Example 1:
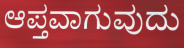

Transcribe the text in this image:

ಆಪ್ತವಾಗುವುದು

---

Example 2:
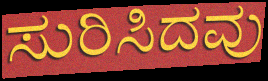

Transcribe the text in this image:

ಸುರಿಸಿದವು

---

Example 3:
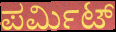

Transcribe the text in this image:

ಪರ್ಮಿಟ್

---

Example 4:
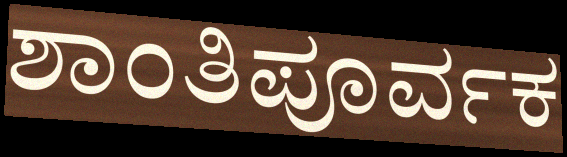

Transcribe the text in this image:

ಶಾಂತಿಪೂರ್ವಕ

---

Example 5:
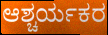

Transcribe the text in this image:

ಆಶ್ಚರ್ಯಕರ